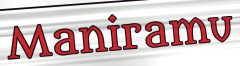
Maniramu